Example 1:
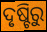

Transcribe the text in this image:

ଦୃଷ୍ଚିରୁ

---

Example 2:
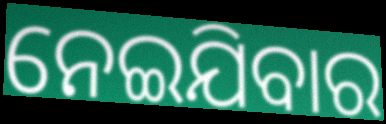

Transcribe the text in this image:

ନେଇଯିବାର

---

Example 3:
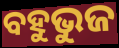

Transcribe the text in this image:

ବହୁଭୁଜ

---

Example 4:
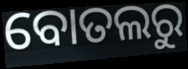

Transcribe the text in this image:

ବୋତଲରୁ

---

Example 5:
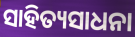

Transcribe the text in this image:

ସାହିତ୍ୟସାଧନା